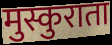
मुस्कुराता